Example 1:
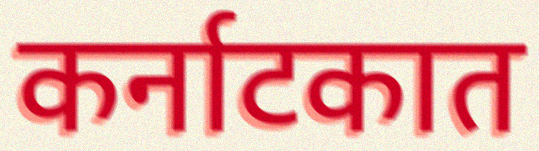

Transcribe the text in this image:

कर्नाटकात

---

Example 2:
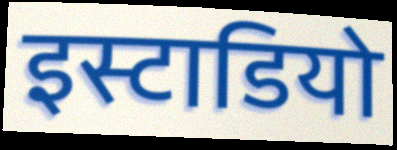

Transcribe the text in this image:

इस्टाडियो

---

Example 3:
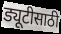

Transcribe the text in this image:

ड्यूटीसाठी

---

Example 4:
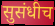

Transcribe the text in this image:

सुसंधीच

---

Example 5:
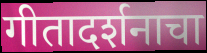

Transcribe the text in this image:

गीतादर्शनाचा